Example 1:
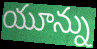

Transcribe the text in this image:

యూన్ను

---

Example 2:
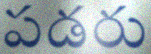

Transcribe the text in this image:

పడరు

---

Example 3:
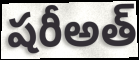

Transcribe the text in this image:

షరీఅత్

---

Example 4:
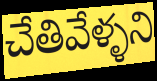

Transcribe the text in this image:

చేతివేళ్ళని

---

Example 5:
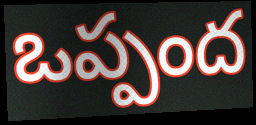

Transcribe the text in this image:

ఒప్పంద